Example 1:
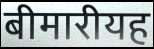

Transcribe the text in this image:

बीमारीयह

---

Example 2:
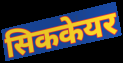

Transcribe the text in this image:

सिककेयर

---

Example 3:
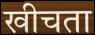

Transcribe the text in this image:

खीचता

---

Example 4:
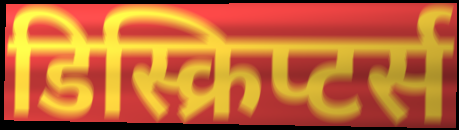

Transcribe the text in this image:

डिस्क्रिप्टर्स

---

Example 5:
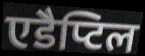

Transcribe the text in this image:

एडैप्टिल